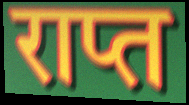
राप्त